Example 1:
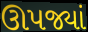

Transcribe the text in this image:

ઊપજ્યાં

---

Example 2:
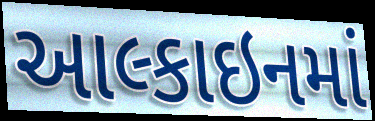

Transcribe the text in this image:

આલ્કાઇનમાં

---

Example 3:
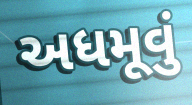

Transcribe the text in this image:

અધમૂવું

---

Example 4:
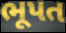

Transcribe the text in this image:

ભૂપત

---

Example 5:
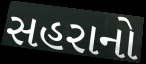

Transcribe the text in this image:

સહરાનો